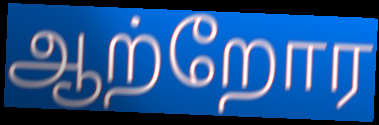
ஆற்றோர